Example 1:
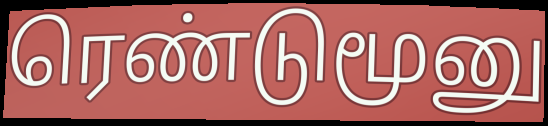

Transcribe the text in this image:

ரெண்டுமூனு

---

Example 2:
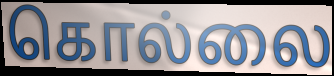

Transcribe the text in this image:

கொல்லை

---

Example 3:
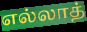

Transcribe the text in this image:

எல்லாத்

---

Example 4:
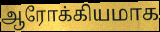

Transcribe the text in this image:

ஆரோக்கியமாக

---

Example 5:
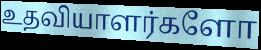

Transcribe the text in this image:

உதவியாளர்களோ